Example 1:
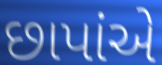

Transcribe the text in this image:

છાપાંએ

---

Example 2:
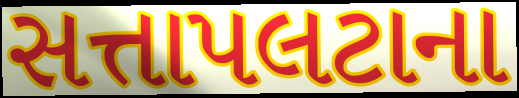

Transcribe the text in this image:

સત્તાપલટાના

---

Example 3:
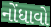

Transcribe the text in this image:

નોંધાવો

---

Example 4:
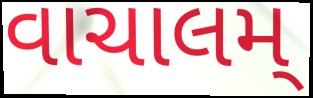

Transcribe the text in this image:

વાચાલમ્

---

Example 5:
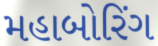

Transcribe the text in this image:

મહાબોરિંગ